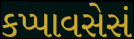
કપ્પાવસેસં